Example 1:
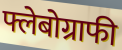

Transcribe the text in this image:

फ्लेबोग्राफी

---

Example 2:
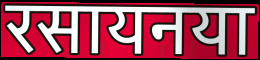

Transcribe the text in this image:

रसायनया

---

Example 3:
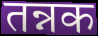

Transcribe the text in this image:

तन्नक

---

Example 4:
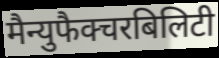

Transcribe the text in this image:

मैन्युफैक्चरबिलिटी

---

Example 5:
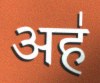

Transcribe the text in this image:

अह॑